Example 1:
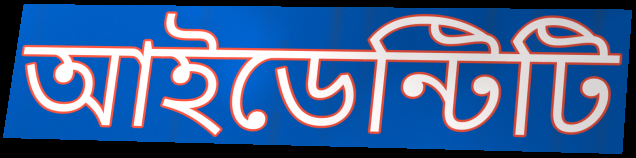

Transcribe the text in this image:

আইডেন্টিটি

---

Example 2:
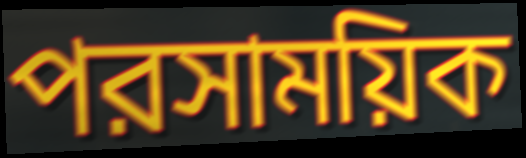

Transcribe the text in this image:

পরসাময়িক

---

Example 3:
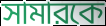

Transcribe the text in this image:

সামারকে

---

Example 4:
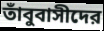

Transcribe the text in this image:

তাঁবুবাসীদের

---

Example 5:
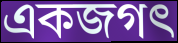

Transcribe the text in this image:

একজগৎ